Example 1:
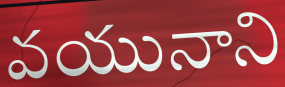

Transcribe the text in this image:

వయునాని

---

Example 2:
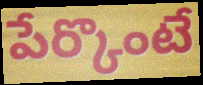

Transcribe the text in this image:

పేర్కొంటే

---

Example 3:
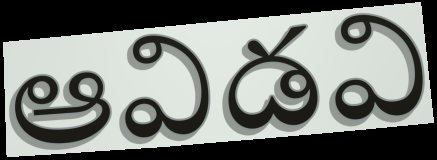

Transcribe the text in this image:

ఆవిడవి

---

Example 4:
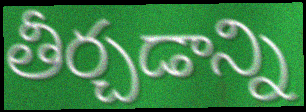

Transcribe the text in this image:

తీర్చడాన్ని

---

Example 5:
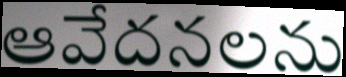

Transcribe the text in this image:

ఆవేదనలను